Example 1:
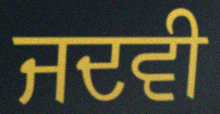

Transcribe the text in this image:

ਜਦਵੀ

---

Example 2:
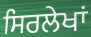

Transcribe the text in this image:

ਸਿਰਲੇਖਾਂ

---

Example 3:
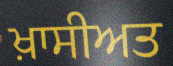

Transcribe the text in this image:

ਖ਼ਾਸੀਅਤ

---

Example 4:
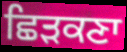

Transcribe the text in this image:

ਛਿੜਕਣਾ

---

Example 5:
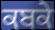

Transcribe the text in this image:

ਕਬਕੇ